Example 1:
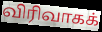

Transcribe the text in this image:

விரிவாகக்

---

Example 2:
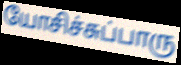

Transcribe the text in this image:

யோசிச்சுப்பாரு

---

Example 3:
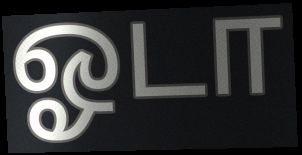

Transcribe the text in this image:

ஓடா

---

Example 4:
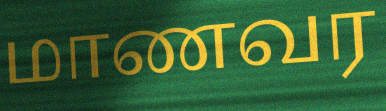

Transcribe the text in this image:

மாணவர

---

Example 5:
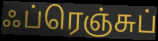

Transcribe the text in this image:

ஃப்ரெஞ்சுப்